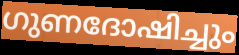
ഗുണദോഷിച്ചും